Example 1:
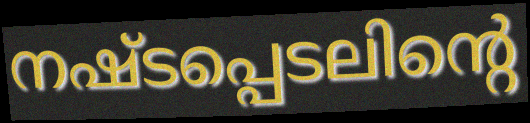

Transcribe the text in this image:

നഷ്ടപ്പെടലിന്റെ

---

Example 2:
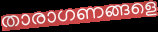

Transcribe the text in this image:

താരാഗണങ്ങളെ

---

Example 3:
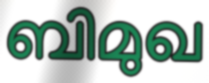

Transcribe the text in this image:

ബിമുഖ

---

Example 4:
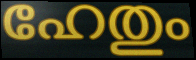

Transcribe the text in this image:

ഹേതും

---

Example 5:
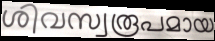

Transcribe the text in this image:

ശിവസ്വരൂപമായ